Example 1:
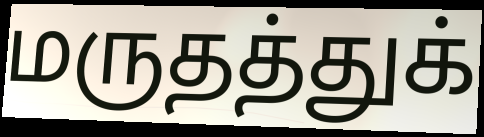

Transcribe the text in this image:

மருதத்துக்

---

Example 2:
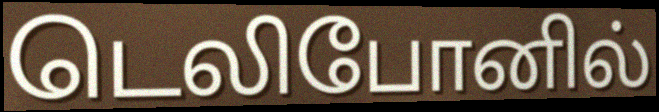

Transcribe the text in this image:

டெலிபோனில்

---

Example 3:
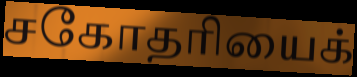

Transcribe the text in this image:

சகோதரியைக்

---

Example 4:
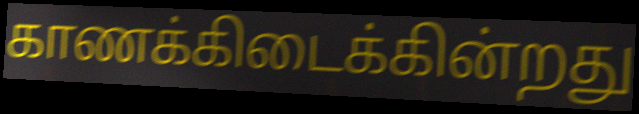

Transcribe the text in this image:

காணக்கிடைக்கின்றது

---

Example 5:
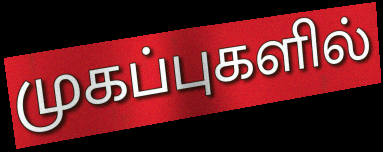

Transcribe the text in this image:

முகப்புகளில்